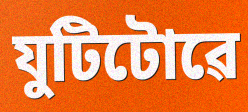
যুটিটোৱে